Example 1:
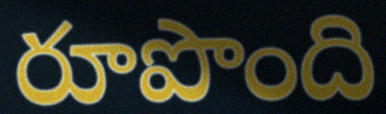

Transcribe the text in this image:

రూపొంది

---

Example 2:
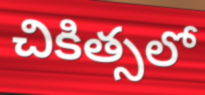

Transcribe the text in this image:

చికిత్సలో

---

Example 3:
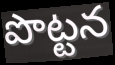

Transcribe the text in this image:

పొట్టన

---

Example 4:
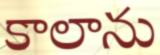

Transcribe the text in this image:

కాలాను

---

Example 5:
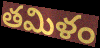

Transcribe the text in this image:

తమిళం